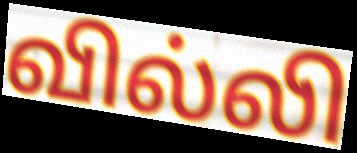
வில்லி